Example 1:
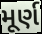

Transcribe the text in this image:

મૂર્ણ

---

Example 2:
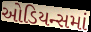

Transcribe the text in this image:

ઓડિયન્સમાં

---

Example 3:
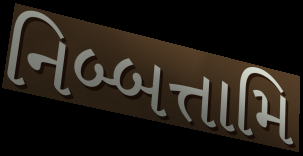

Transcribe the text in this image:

નિબ્બત્તામિ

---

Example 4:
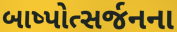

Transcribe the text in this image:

બાષ્પોત્સર્જનના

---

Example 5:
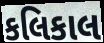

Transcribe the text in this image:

કલિકાલ